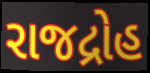
રાજદ્રોહ